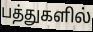
பத்துகளில்